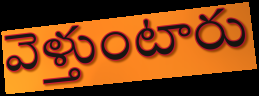
వెళ్తుంటారు